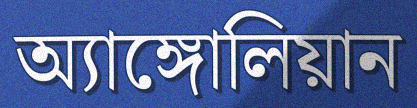
অ্যাঙ্গোলিয়ান